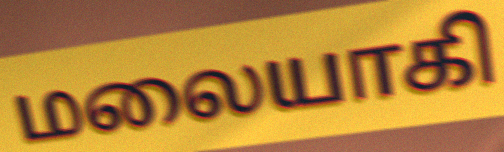
மலையாகி